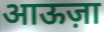
आऊज़ा